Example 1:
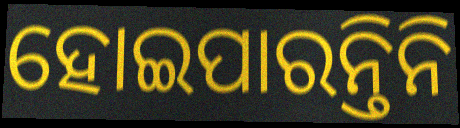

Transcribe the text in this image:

ହୋଇପାରନ୍ତିନି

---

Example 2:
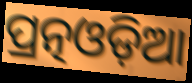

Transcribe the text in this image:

ପ୍ରତ୍ନଓଡ଼ିଆ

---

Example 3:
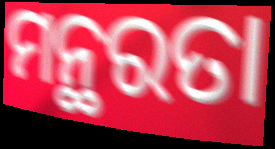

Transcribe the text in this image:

ମନ୍ଥରତା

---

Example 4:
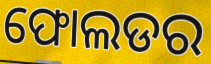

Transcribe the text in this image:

ଫୋଲଡର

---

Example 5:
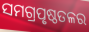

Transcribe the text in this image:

ସମଗ୍ରପୃଷ୍ଠତଳର